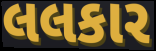
લલકાર